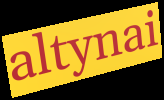
altynai